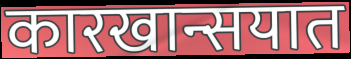
कारखान्सयात